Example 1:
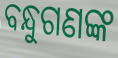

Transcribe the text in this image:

ବନ୍ଧୁଗଣଙ୍କ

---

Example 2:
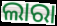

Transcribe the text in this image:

ଲାରା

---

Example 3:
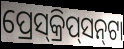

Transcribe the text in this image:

ପ୍ରେସ୍‌କ୍ରିପ୍‌ସନ୍‌ଟା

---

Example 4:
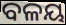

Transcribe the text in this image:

ବଳୟ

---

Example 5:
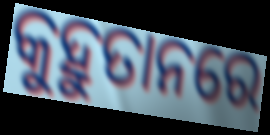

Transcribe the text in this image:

କୁହୁତାନରେ